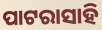
ପାଟରାସାହି